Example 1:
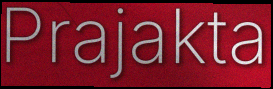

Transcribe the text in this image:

Prajakta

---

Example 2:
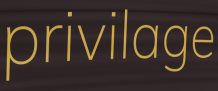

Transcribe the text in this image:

privilage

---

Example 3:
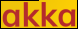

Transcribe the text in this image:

akka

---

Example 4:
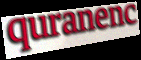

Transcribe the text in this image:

quranenc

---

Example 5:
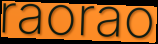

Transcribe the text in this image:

raorao